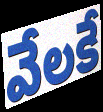
వేలకే